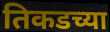
तिकडच्या